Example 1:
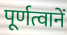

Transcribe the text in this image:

पूर्णत्वानें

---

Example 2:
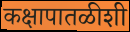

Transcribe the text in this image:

कक्षापातळीशी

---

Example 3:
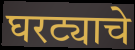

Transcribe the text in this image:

घरट्याचे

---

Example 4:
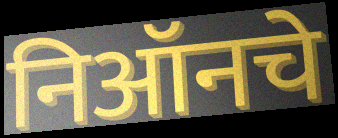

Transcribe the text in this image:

निऑनचे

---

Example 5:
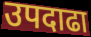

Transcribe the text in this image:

उपदाढा